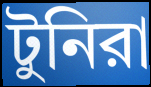
টুনিরা